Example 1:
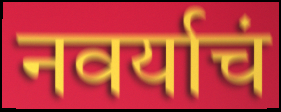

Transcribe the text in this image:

नवर्याचं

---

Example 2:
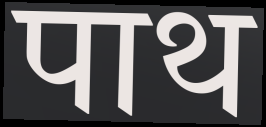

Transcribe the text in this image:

पाथ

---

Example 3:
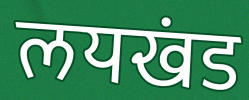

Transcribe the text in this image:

लयखंड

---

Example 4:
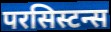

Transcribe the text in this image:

परसिस्टन्स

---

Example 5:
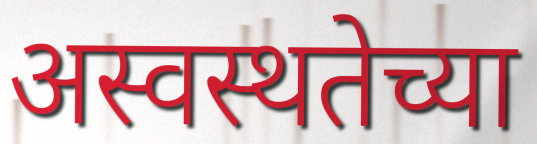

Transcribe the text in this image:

अस्वस्थतेच्या